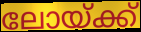
ലോയ്ക്ക്